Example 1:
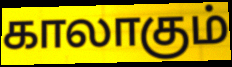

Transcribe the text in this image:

காலாகும்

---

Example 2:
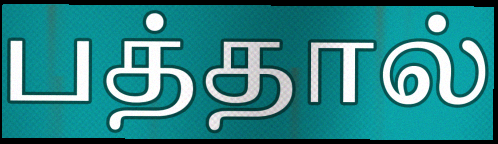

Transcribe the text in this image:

பத்தால்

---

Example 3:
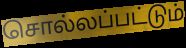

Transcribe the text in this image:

சொல்லப்பட்டும்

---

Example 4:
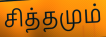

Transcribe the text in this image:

சித்தமும்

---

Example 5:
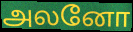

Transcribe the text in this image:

அலனோ